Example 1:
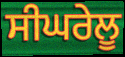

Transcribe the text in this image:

ਸੀਘਰੇਲੂ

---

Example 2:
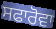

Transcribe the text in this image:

ਸਫਾਰੋਵਾ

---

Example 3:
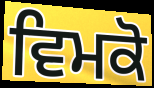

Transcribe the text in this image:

ਵਿਮਕੋ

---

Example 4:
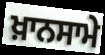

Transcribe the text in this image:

ਖ਼ਾਨਸਾਮੇ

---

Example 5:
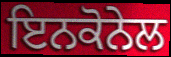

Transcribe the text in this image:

ਇਨਕੋਨੇਲ